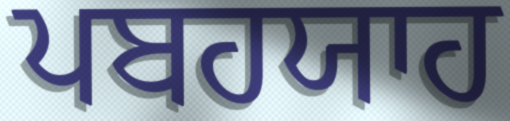
ਪਬਹਯਾਹ